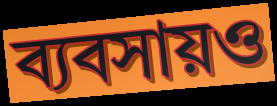
ব্যবসায়ও